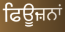
ਫਿਊਜ਼ਨਾਂ